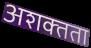
अशक्‍तता